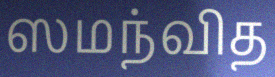
ஸமந்வித